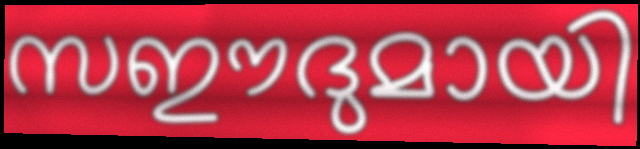
സഈദുമായി